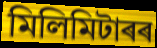
মিলিমিটাৰৰ